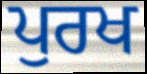
ਪੁਰਖ